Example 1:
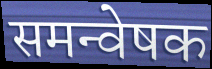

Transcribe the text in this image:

समन्वेषक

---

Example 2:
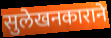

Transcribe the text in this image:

सुलेखनकाराने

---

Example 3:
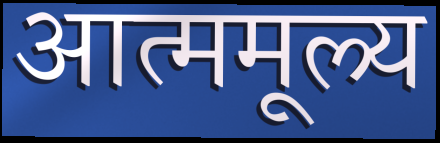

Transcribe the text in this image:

आत्ममूल्य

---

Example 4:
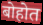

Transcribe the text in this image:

बोहोत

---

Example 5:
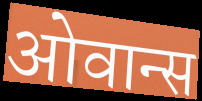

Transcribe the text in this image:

ओवान्स